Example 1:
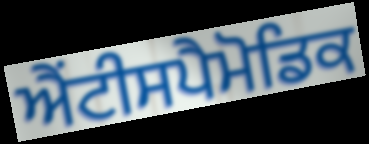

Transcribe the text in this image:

ਐਂਟੀਸਪੈਮੋਡਿਕ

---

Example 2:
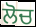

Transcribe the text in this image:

ਲੋਚ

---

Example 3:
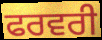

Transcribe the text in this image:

ਫਰਵਰੀ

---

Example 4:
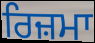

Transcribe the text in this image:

ਰਿਜ਼ਮਾ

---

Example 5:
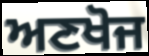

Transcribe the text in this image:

ਅਣਖੋਜ